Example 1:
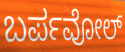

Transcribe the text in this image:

ಬರ್ಪವೋಲ್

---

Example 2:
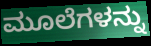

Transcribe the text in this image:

ಮೂಲೆಗಳನ್ನು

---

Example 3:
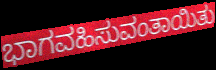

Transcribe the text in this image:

ಭಾಗವಹಿಸುವಂತಾಯಿತು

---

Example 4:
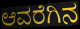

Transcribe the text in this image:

ಆವರೆಗಿನ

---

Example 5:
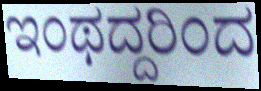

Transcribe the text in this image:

ಇಂಥದ್ದರಿಂದ